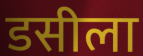
डसीला